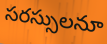
సరస్సులనూ